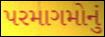
પરમાગમોનું